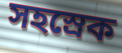
সহস্রেক